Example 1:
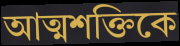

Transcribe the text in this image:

আত্মশক্তিকে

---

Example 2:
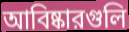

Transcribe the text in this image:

আবিষ্কারগুলি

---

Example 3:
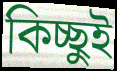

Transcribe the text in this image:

কিচ্ছুই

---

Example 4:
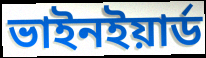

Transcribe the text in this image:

ভাইনইয়ার্ড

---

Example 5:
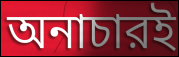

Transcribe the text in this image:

অনাচারই